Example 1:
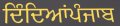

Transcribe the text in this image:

ਦਿੰਦਿਆਂਪੰਜਾਬ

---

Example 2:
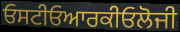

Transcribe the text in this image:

ਓਸਟੀਓਆਰਕੀਓਲੋਜੀ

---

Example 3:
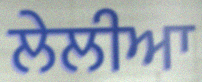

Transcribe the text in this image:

ਲੇਲੀਆ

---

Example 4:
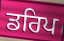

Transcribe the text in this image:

ਡਰਿਪ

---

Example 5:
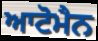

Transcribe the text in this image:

ਆਟੋਮੈਨ